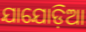
ଯାଯୋଡ଼ିଆ